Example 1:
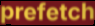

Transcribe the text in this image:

prefetch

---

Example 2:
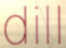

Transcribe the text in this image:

dill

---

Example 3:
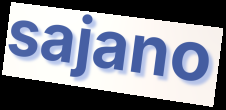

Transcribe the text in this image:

sajano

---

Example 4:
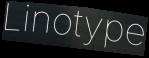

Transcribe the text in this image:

Linotype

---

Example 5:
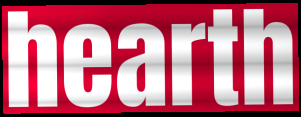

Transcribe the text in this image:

hearth